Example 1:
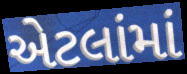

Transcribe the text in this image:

એટલાંમાં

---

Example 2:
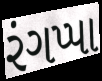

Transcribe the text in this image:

રંગપ્પા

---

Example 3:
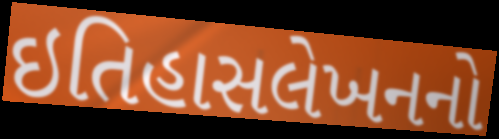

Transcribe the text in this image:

ઇતિહાસલેખનનો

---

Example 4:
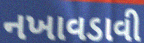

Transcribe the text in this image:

નખાવડાવી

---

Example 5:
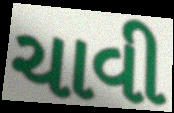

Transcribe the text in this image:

ચાવી